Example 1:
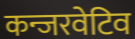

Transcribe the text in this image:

कन्जरवेटिव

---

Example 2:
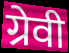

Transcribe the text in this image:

ग्रेवी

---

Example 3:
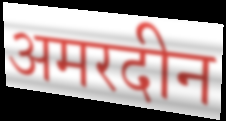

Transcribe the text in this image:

अमरदीन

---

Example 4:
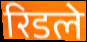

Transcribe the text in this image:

रिडले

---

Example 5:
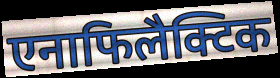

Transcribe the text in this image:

एनाफिलैक्टिक